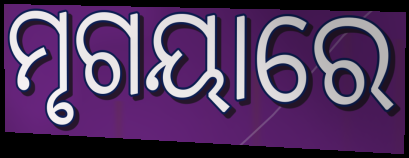
ମୃଗୟାରେ